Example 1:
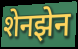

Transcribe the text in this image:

शेनझेन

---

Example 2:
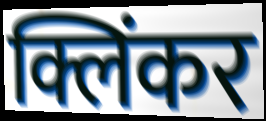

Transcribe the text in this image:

क्लिंकर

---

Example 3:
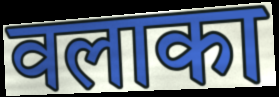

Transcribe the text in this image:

वलाका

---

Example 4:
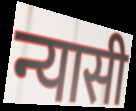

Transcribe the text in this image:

न्यासी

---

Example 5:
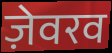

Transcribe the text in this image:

ज़ेवरव